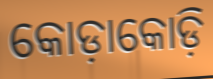
କୋଡ଼ାକୋଡ଼ି